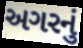
અગરનું